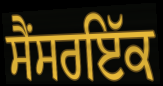
ਸੈਂਸਰਇੱਕ